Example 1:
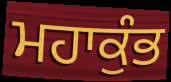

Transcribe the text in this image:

ਮਹਾਕੁੰਭ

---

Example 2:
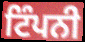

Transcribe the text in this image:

ਟਿੰਪਨੀ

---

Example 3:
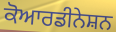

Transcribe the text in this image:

ਕੋਆਰਡੀਨੇਸ਼ਨ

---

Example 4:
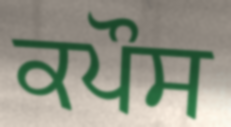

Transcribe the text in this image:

ਕਪੌਸ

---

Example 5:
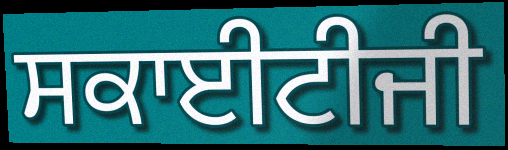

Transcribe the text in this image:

ਸਕਾਈਟੀਜੀ